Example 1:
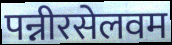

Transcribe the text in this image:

पन्नीरसेलवम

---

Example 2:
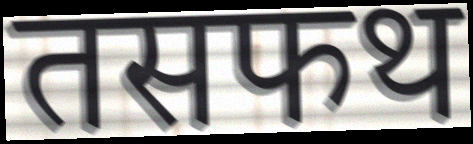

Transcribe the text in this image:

तसफथ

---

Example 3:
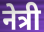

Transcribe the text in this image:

नेत्री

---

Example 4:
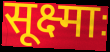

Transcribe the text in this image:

सूक्ष्माः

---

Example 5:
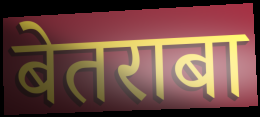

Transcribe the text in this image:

बेतराबा